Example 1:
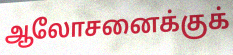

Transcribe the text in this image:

ஆலோசனைக்குக்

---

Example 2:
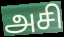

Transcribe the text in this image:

அசி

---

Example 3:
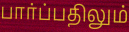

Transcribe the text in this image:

பார்ப்பதிலும்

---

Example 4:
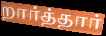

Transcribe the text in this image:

றார்த்தார்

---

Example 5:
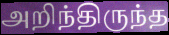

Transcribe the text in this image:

அறிந்திருந்த